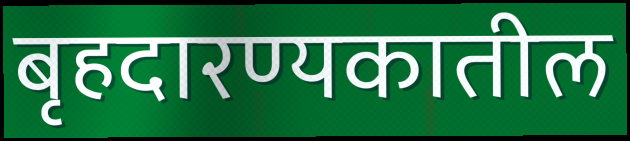
बृहदारण्यकातील